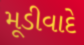
મૂડીવાદે